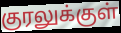
குரலுக்குள்